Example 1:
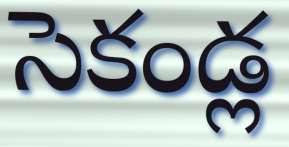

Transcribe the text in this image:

సెకండ్ల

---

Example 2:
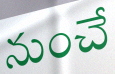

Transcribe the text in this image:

నుంచే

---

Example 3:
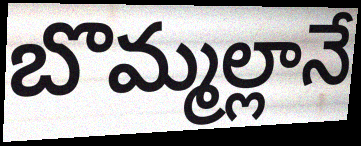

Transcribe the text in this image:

బొమ్మల్లానే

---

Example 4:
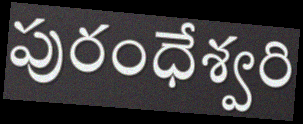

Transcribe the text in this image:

పురంధేశ్వరి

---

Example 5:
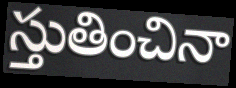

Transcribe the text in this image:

స్తుతించినా